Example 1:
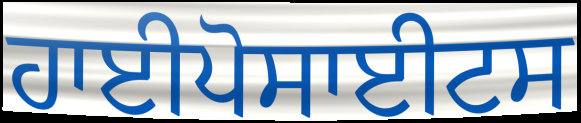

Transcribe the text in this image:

ਹਾਈਪੋਸਾਈਟਸ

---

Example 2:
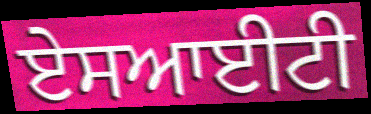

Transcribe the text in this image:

ਏਸਆਈਟੀ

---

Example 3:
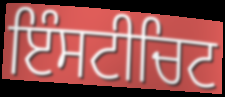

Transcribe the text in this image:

ਇੰਸਟੀਚਿਟ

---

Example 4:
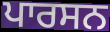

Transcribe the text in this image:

ਪਾਰਸਨ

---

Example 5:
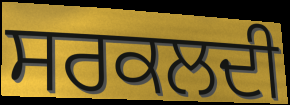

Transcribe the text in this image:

ਸਰਕਲਦੀ